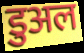
डुअल